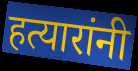
हत्यारांनी